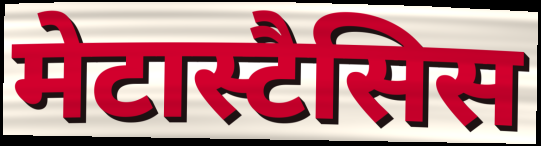
मेटास्टैसिस